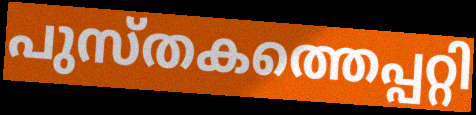
പുസ്തകത്തെപ്പറ്റി